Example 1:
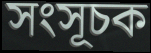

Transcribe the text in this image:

সংসূচক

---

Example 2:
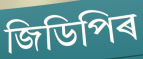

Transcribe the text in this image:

জিডিপিৰ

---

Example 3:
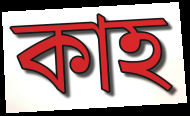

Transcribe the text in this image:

কাহ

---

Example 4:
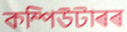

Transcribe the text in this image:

কম্পিউটাৰৰ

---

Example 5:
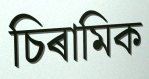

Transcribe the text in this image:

চিৰামিক